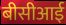
बीसीआई